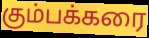
கும்பக்கரை